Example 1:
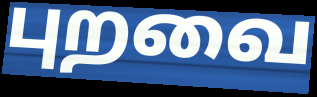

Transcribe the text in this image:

புறவை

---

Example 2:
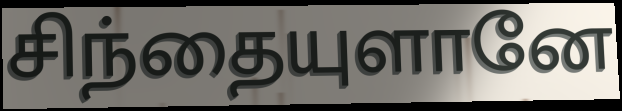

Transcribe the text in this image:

சிந்தையுளானே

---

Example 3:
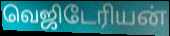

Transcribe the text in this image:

வெஜிடேரியன்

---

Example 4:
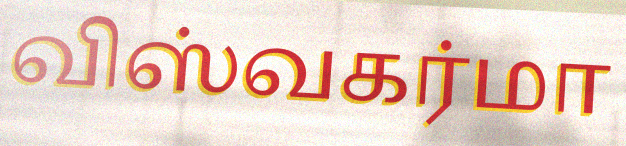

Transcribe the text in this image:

விஸ்வகர்மா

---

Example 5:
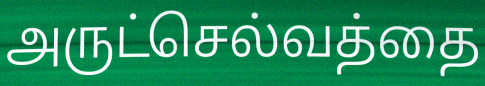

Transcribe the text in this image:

அருட்செல்வத்தை